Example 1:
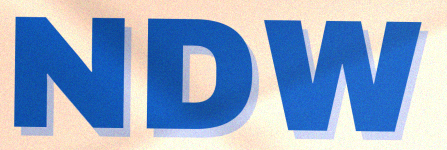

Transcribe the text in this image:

NDW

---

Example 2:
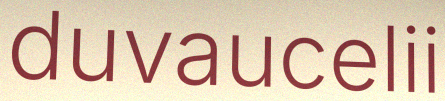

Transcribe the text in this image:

duvaucelii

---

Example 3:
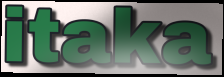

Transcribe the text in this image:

itaka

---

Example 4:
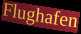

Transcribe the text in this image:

Flughafen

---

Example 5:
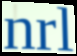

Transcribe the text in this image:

nrl